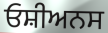
ਓਸ਼ੀਅਨਸ